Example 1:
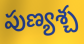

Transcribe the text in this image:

పుణ్యశ్చ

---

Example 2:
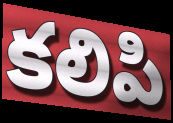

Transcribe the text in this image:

కలిపి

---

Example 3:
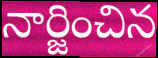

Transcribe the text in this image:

నార్జించిన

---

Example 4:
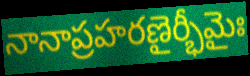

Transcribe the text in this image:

నానాప్రహరణైర్భీమైః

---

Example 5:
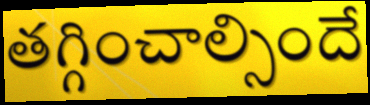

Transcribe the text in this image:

తగ్గించాల్సిందే